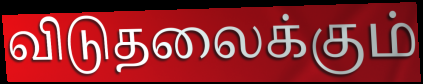
விடுதலைக்கும்